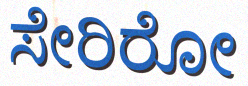
ಸೇರಿರೋ